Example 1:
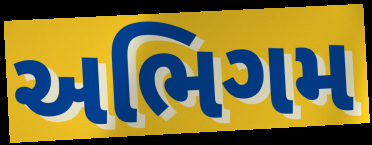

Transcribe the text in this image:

અભિગમ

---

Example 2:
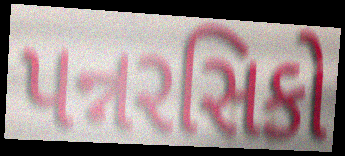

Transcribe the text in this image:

પન્નરસિકો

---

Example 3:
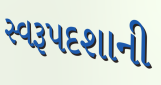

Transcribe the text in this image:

સ્વરૂપદશાની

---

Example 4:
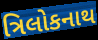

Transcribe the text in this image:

ત્રિલોકનાથ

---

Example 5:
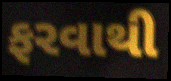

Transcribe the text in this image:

ફરવાથી